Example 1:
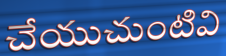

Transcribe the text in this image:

చేయుచుంటివి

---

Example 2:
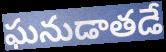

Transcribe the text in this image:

ఘనుడాతడే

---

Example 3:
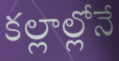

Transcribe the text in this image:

కల్లాల్లోనే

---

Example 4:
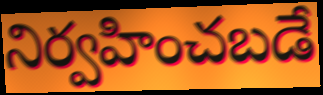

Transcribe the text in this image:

నిర్వహించబడే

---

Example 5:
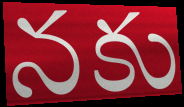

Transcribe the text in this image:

నకు